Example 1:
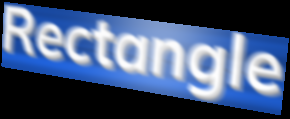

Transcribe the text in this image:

Rectangle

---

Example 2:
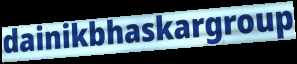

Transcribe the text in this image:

dainikbhaskargroup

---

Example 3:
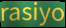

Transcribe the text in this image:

rasiyo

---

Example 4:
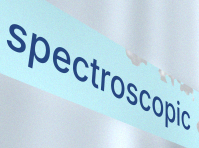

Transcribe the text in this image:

spectroscopic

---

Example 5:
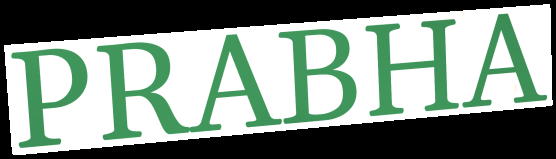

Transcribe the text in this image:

PRABHA